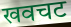
खवचट